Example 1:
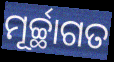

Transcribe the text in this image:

ମୂର୍ଚ୍ଛାଗତ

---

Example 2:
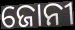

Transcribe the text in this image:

ଜୋନୀ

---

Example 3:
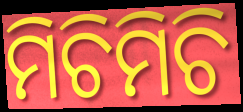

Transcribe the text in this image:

ମିଚିମିଚି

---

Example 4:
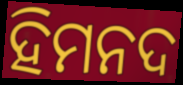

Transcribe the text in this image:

ହିମନଦ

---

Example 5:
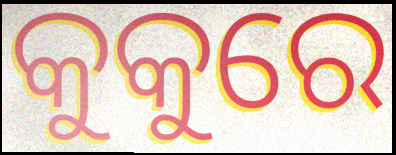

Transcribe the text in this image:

କୁକୁରେ